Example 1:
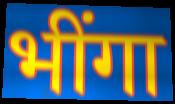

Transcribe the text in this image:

भींगा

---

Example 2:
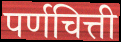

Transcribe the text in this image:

पर्णचित्ती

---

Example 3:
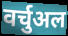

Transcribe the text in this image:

वर्चुअल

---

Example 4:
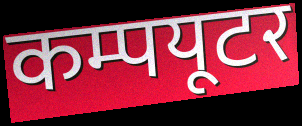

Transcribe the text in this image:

कम्पयूटर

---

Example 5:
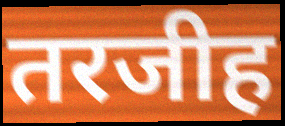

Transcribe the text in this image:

तरजीह